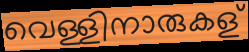
വെള്ളിനാരുകള്